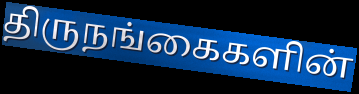
திருநங்கைகளின்